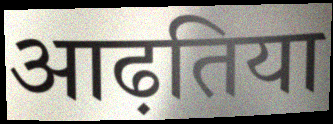
आढ़तिया